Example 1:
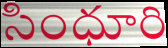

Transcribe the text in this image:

సింధూరి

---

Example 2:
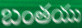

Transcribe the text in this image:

బంతయు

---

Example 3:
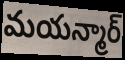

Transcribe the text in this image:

మయన్మార్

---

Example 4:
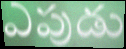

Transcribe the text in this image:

ఎపుడు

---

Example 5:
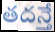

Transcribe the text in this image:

తదన్తే